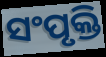
ସଂପୃକ୍ତି